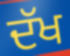
ਦੱਖ